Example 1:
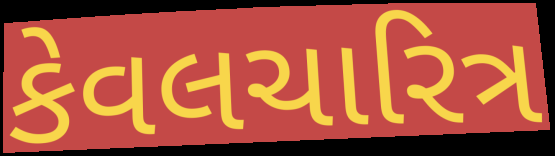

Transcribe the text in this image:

કેવલચારિત્ર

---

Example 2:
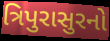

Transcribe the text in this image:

ત્રિપુરાસુરનો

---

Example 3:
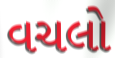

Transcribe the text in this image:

વચલો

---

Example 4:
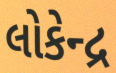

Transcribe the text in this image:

લોકેન્દ્ર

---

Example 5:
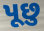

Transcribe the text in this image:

પૂછુ